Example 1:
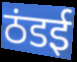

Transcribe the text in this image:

ठंडई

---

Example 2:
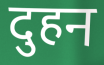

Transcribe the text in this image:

दुहन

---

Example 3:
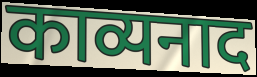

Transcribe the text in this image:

काव्यनाद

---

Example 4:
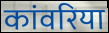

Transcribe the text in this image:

कांवरिया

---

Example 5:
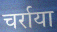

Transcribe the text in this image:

चर्राया